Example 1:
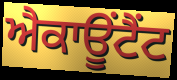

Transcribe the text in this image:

ਐਕਾਊਂਟੈਂਟ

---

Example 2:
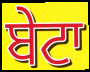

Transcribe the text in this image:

ਬੇਟਾ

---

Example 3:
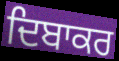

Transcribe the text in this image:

ਦਿਬਾਕਰ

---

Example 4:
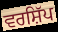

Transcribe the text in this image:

ਵਰਸ਼ਿੱਪ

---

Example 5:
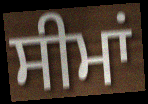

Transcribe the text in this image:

ਸੀਮਾਂ